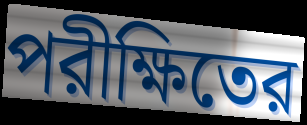
পরীক্ষিতের